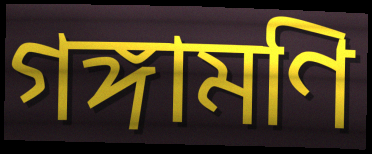
গঙ্গামণি